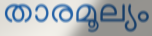
താരമൂല്യം